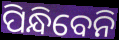
ପିନ୍ଧିବେନି